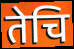
तेचि